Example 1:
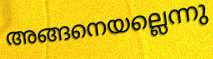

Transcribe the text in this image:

അങ്ങനെയല്ലെന്നു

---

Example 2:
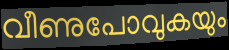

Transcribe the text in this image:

വീണുപോവുകയും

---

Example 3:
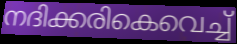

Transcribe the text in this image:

നദിക്കരികെവെച്ച്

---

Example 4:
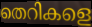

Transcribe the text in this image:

തെറികളെ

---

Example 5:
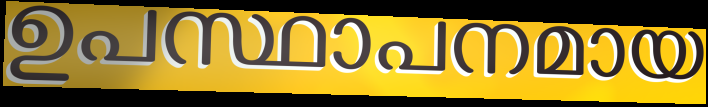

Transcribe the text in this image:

ഉപസ്ഥാപനമായ